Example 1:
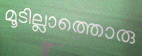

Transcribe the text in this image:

മൂടില്ലാത്തൊരു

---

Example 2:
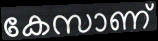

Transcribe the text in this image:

കേസാണ്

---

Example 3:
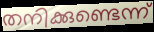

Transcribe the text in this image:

തനിക്കുണ്ടെന്ന്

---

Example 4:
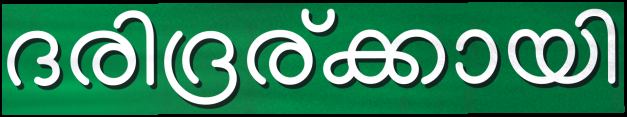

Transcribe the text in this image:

ദരിദ്രര്ക്കായി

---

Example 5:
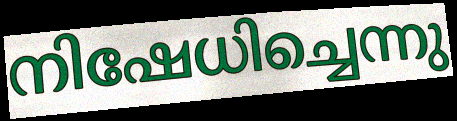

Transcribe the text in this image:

നിഷേധിച്ചെന്നു